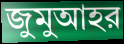
জুমুআহর